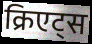
क्रिएट्स